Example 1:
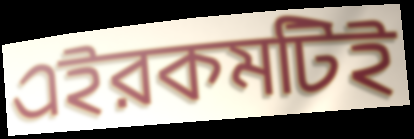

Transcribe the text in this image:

এইরকমটিই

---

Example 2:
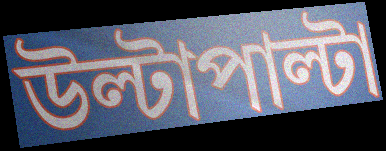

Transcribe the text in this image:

উল্টাপাল্টা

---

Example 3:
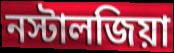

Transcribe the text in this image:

নস্টালজিয়া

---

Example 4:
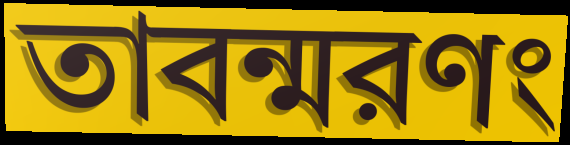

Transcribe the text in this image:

তাবন্মরণং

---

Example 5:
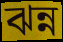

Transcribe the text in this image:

ঝন্ন